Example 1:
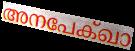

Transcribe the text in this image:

അനപേക്ഖാ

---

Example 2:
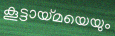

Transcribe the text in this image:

കൂട്ടായ്മയെയും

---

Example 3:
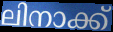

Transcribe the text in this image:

ലിനാക്ക്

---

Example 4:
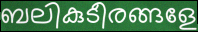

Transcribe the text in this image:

ബലികുടീരങ്ങളേ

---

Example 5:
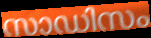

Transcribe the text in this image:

സാഡിസം